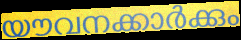
യൗവനക്കാർക്കും